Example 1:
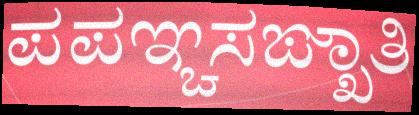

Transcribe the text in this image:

ಪಪಞ್ಚಸಙ್ಖಾತಿ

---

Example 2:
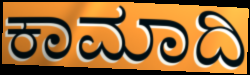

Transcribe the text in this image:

ಕಾಮಾದಿ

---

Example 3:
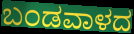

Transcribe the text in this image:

ಬಂಡವಾಳದ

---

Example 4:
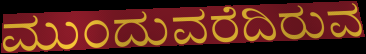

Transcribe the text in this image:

ಮುಂದುವರೆದಿರುವ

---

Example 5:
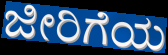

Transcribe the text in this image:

ಜೀರಿಗೆಯ